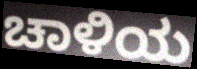
ಚಾಳಿಯ